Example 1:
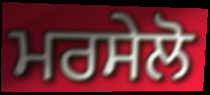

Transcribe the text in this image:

ਮਰਸੇਲੋ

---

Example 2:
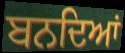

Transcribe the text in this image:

ਬਨਦਿਆਂ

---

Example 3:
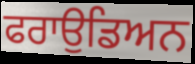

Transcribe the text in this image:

ਫਰਾਉਡਿਅਨ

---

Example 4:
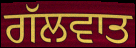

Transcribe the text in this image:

ਗੱਲਵਾਤ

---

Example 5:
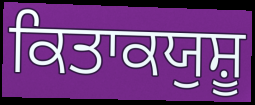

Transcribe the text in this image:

ਕਿਤਾਕਯੁਸ਼ੂ